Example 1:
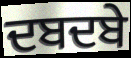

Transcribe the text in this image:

ਦਬਦਬੇ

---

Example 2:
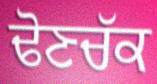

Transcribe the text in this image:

ਢੋਣਚੱਕ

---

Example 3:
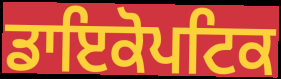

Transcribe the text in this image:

ਡਾਇਕੋਪਟਿਕ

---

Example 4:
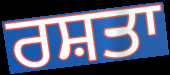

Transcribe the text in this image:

ਰਸ਼ਤਾ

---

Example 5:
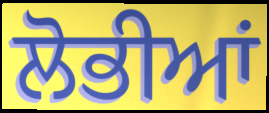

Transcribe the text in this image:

ਲੋਭੀਆਂ